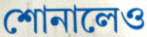
শোনালেও